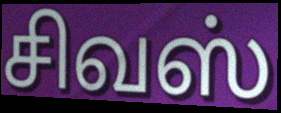
சிவஸ்